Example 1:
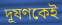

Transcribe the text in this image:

দূষণকেই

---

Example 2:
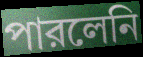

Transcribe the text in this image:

পারলেনি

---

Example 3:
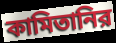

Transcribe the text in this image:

কামিতানির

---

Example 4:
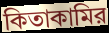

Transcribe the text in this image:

কিতাকামির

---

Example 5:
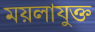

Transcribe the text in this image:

ময়লাযুক্ত